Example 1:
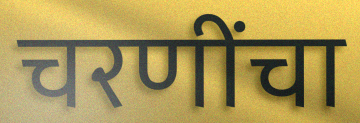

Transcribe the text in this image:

चरणींचा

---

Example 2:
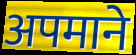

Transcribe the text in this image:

अपमाने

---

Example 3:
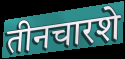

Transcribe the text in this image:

तीनचारशे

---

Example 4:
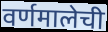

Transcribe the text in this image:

वर्णमालेची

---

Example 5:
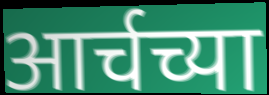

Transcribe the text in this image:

आर्चच्या